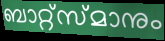
ബാറ്റ്സ്മാനും